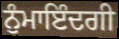
ਨੁੰਮਾਇੰਦਗੀ